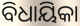
ବିଧାୟିକା